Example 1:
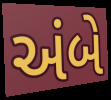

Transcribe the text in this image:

અંબે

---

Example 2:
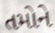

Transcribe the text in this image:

તમોને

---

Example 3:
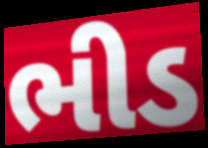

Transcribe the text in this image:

ભીડ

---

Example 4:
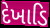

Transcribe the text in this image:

દેખાડિ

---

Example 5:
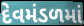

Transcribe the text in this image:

દેવમંડળમાં